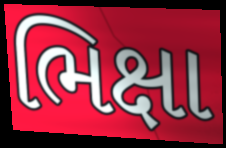
ભિક્ષા